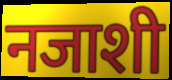
नजाशी